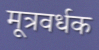
मूत्रवर्धक